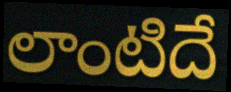
లాంటిదే